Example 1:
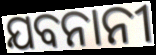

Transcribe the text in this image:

ଯବନାନୀ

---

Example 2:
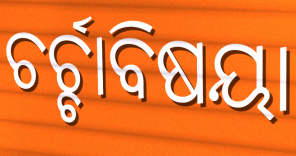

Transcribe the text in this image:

ଚର୍ଚ୍ଚାବିଷୟା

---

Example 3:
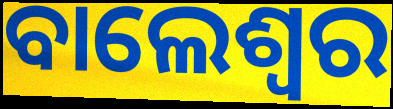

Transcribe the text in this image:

ବାଲେଶ୍ବର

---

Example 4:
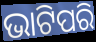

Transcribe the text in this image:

ଭାଟିପରି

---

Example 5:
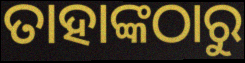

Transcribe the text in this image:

ତାହାଙ୍କଠାରୁ